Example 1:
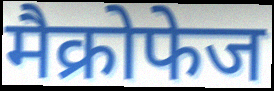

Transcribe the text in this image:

मैक्रोफेज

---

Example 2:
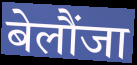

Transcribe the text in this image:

बेलौंजा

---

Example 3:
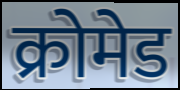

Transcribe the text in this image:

क्रोमेड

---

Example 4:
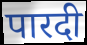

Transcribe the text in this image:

पारदी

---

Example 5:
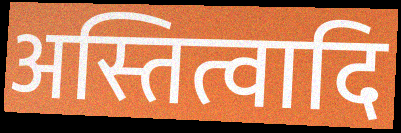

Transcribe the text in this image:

अस्तित्वादि